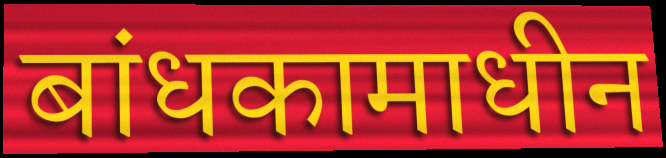
बांधकामाधीन